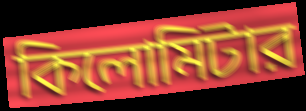
কিলোমিটার